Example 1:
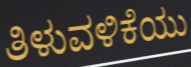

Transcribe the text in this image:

ತಿಳುವಳಿಕೆಯು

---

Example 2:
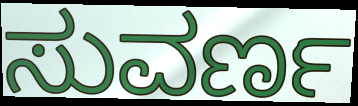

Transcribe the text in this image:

ಸುವರ್ಣ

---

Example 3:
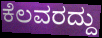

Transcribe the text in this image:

ಕೆಲವರದ್ದು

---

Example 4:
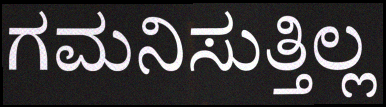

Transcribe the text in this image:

ಗಮನಿಸುತ್ತಿಲ್ಲ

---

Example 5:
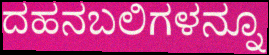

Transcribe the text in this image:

ದಹನಬಲಿಗಳನ್ನೂ